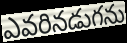
ఎవరినడుగను